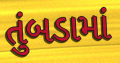
તુંબડામાં